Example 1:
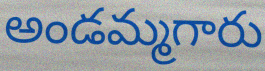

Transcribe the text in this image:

అండమ్మగారు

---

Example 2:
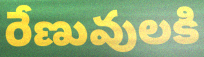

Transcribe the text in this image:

రేణువులకి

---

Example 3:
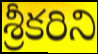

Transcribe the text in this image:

శ్రీకరిని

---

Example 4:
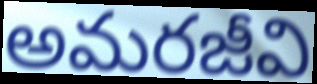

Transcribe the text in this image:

అమరజీవి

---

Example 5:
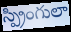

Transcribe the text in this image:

స్ప్రింగులా